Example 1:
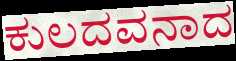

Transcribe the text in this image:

ಕುಲದವನಾದ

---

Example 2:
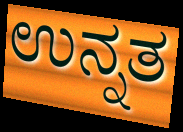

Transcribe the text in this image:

ಉನ್ನತ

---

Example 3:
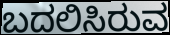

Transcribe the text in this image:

ಬದಲಿಸಿರುವ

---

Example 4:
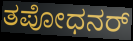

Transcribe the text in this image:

ತಪೋಧನರ್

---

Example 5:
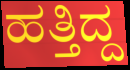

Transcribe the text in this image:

ಹತ್ತಿದ್ದ